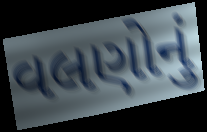
વલણોનું